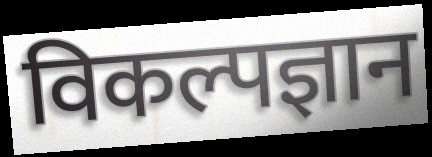
विकल्पज्ञान